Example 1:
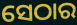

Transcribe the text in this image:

ସେଠାର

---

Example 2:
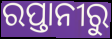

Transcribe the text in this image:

ରପ୍ତାନୀରୁ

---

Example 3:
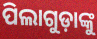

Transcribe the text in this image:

ପିଲାଗୁଡ଼ାଙ୍କୁ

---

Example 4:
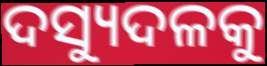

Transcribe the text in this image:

ଦସ୍ୟୁଦଳକୁ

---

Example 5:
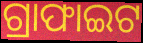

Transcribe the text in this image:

ଗ୍ରାଫାଇଟ